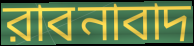
রাবনাবাদ